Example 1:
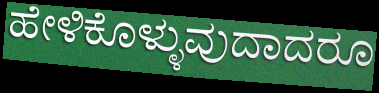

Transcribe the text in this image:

ಹೇಳಿಕೊಳ್ಳುವುದಾದರೂ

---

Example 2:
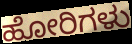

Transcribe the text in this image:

ಹೋರಿಗಳು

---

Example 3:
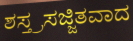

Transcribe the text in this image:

ಶಸ್ತ್ರಸಜ್ಜಿತವಾದ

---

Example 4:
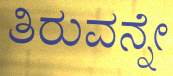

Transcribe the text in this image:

ತಿರುವನ್ನೇ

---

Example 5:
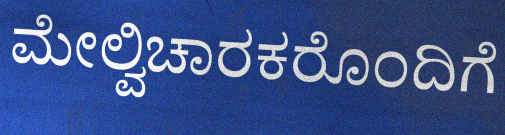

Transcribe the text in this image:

ಮೇಲ್ವಿಚಾರಕರೊಂದಿಗೆ